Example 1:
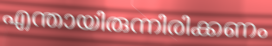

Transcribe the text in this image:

എന്തായിരുന്നിരിക്കണം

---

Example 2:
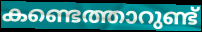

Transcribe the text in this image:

കണ്ടെത്താറുണ്ട്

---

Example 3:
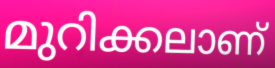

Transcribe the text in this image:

മുറിക്കലാണ്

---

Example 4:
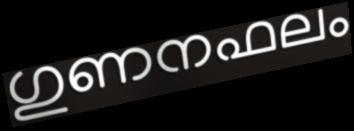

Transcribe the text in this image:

ഗുണനഫലം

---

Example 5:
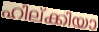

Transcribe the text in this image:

ഹില്ക്കിയാ